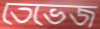
তেভেজ